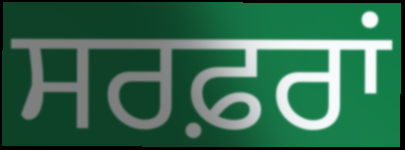
ਸਰਫ਼ਰਾਂ